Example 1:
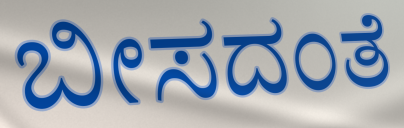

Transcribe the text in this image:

ಬೀಸದಂತೆ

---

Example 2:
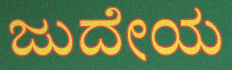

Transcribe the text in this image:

ಜುದೇಯ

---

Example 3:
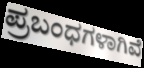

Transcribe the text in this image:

ಪ್ರಬಂಧಗಳಾಗಿವೆ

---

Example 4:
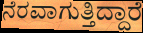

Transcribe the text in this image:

ನೆರವಾಗುತ್ತಿದ್ದಾರೆ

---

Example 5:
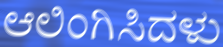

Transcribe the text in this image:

ಆಲಿಂಗಿಸಿದಳು